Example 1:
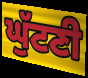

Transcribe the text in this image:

ਘੁੱਟਣੀ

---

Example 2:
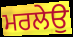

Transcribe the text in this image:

ਮਰਲੇਉ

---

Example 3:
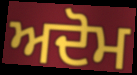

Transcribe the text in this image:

ਅਦੋਮ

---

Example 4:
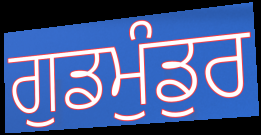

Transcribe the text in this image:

ਗੁਡਮੁੰਡੁਰ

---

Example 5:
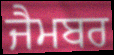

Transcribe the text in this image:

ਜੈਮਬਰ